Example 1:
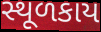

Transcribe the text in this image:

સ્થૂળકાય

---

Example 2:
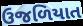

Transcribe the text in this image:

ઉજળિયાત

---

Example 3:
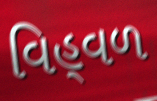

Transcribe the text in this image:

વિહ્‌વળ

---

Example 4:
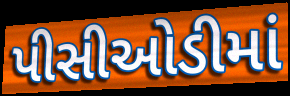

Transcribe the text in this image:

પીસીઓડીમાં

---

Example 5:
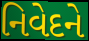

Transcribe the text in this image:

નિવેદને